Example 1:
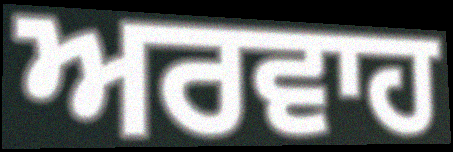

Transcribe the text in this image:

ਅਰਵਾਹ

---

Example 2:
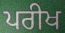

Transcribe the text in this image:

ਪਰੀਖ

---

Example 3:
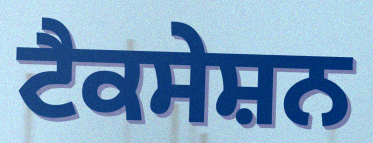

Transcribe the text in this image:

ਟੈਕਸੇਸ਼ਨ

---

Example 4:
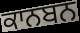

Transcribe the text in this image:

ਕਾਨਬਨ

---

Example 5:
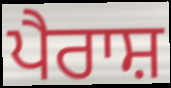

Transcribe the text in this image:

ਪੈਰਾਸ਼